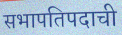
सभापतिपदाची